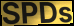
SPDs